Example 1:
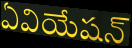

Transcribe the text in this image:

ఏవియేషన్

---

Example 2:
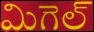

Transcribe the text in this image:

మిగెల్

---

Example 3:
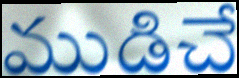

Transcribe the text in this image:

ముడిచే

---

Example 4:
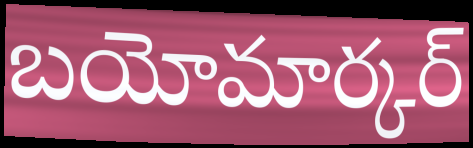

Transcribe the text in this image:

బయోమార్కర్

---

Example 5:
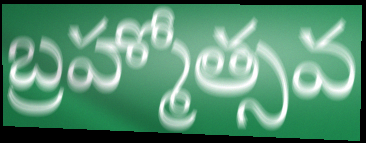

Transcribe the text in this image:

బ్రహ్మోత్సవ